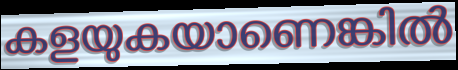
കളയുകയാണെങ്കിൽ